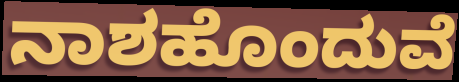
ನಾಶಹೊಂದುವೆ